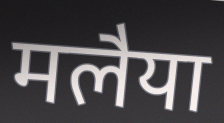
मलैया